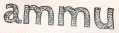
ammu